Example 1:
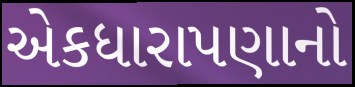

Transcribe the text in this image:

એકધારાપણાનો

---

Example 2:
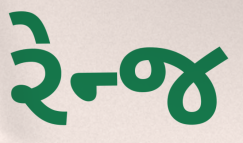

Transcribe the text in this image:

રેન્જ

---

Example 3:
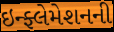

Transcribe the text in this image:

ઇન્ફ્લેમેશનની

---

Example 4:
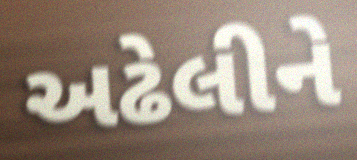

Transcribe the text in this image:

અઢેલીને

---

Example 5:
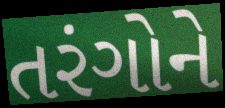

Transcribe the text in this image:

તરંગોને